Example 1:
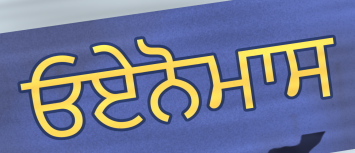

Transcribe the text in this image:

ਓਏਨੋਮਾਸ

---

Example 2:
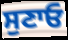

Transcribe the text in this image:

ਸੁਣਾਓ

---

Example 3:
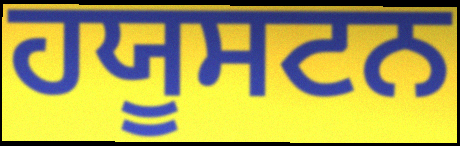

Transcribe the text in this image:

ਹਯੂਸਟਨ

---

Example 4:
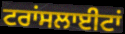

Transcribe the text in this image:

ਟਰਾਂਸਲਾਈਟਾਂ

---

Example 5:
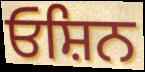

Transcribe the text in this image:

ਓਸ਼ਿਨ